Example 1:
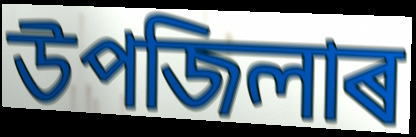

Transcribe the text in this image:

উপজিলাৰ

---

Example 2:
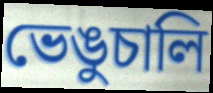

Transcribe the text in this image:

ভেঙুচালি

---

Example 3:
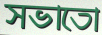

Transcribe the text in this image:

সভাতো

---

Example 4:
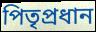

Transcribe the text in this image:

পিতৃপ্ৰধান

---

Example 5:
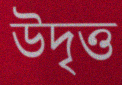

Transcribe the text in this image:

উদৃত্ত